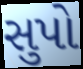
સુપો